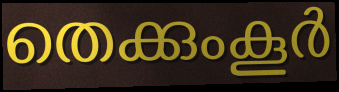
തെക്കുംകൂർ